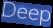
Deep